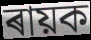
ৰায়ক